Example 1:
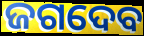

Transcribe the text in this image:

ଜଗଦେବ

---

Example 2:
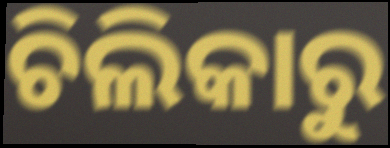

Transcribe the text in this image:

ଚିଲିକାରୁ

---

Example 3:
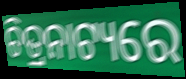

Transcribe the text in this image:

ଚିତ୍ରନାଟ୍ୟରେ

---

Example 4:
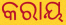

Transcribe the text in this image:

କରାୟ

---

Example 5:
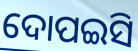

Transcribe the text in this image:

ଦୋପଇସି